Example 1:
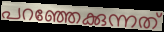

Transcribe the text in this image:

പറഞ്ഞേക്കുന്നത്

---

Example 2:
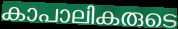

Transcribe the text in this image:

കാപാലികരുടെ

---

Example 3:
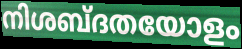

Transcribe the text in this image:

നിശബ്ദതയോളം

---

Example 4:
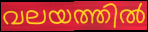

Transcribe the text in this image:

വലയത്തിൽ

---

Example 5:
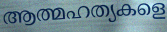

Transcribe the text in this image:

ആത്മഹത്യകളെ